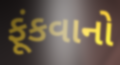
ફૂંકવાનો